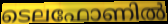
ടെലഫോണിൽ